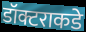
डॉक्टराकडे